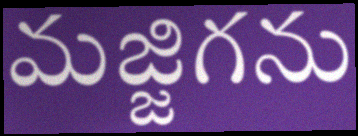
మజ్జిగను